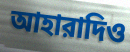
আহারাদিও